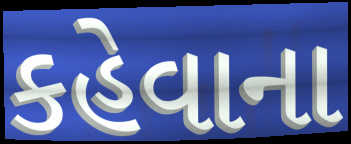
કહેવાના